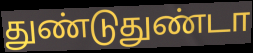
துண்டுதுண்டா